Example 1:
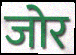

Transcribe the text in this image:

जोर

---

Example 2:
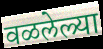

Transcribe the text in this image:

वळलेल्या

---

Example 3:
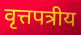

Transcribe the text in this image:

वृत्तपत्रीय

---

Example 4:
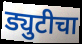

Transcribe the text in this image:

ड्युटीचा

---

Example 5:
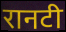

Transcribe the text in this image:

रानटी